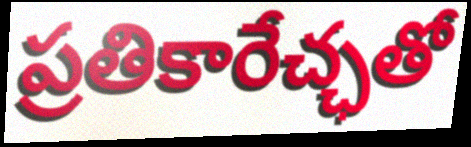
ప్రతికారేచ్ఛతో